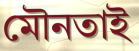
মৌনতাই